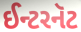
ઈન્ટરનૅટ